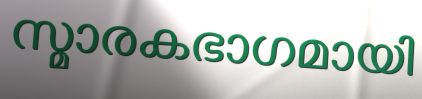
സ്മാരകഭാഗമായി